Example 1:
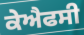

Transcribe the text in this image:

ਕੇਐਫਸੀ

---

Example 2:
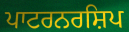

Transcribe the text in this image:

ਪਾਟਰਨਰਸ਼ਿਪ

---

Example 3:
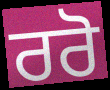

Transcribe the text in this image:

ਰਰੋ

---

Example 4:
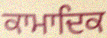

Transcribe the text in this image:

ਕਾਮਾਦਿਕ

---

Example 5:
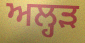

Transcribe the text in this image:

ਅਲ੍ਹੜ